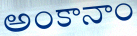
అంకానాం